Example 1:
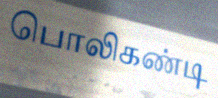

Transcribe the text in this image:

பொலிகண்டி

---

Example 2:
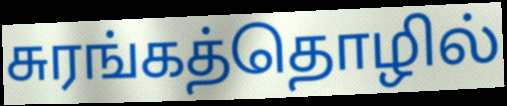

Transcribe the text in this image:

சுரங்கத்தொழில்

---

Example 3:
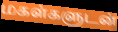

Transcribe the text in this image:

மகள்களுடன்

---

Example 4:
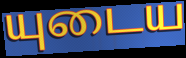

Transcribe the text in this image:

யுடைய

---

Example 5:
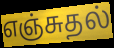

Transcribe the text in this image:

எஞ்சுதல்